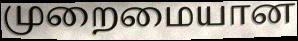
முறைமையான